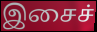
இசைச்